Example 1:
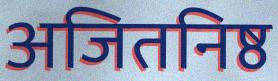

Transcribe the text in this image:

अजितनिष्ठ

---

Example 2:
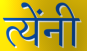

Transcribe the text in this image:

त्येंनी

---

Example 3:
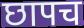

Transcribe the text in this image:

छापच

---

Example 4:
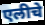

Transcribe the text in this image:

एलीचे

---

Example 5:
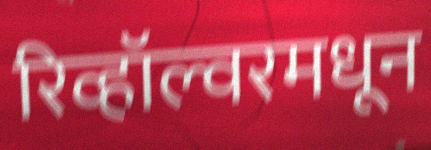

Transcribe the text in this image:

रिव्हॉल्वरमधून